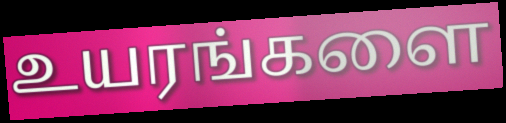
உயரங்களை